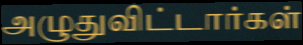
அழுதுவிட்டார்கள்